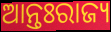
ଆନ୍ତଃରାଜ୍ୟ